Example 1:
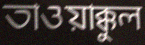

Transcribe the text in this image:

তাওয়াক্কুল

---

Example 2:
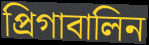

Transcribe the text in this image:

প্রিগাবালিন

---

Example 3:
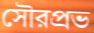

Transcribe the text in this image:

সৌরপ্রভ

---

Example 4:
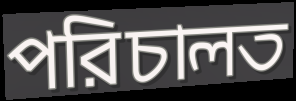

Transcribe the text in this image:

পরিচালত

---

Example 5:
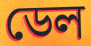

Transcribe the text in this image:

ডেল